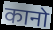
कानो